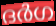
ദർഗ